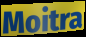
Moitra